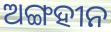
ଅଙ୍ଗହୀନ